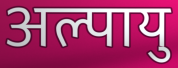
अल्पायु